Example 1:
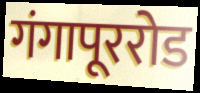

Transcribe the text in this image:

गंगापूररोड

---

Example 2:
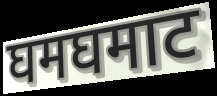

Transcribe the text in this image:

घमघमाट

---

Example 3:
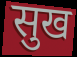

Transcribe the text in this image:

सुख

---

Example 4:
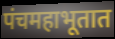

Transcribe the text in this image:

पंचमहाभूतात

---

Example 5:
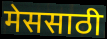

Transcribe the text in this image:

मेससाठी